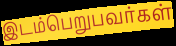
இடம்பெறுபவர்கள்